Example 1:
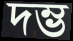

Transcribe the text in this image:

দম্ভ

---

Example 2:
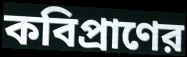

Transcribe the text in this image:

কবিপ্রাণের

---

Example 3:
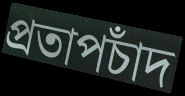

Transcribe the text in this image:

প্রতাপচাঁদ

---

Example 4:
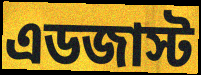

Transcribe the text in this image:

এডজাস্ট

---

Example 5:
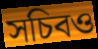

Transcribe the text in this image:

সচিবও